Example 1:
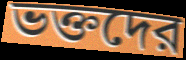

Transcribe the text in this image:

ভক্তদের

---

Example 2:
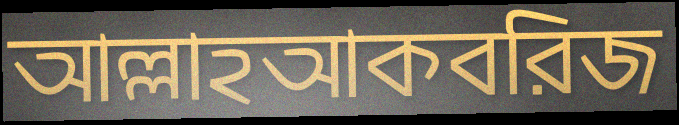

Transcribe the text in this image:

আল্লাহআকবরিজ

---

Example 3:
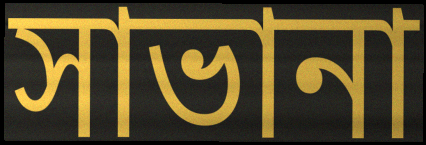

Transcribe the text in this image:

সাভানা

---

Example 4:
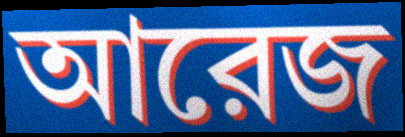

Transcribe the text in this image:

আরেজ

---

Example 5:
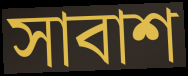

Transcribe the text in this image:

সাবাশ